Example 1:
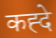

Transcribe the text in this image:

कह्दे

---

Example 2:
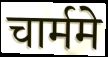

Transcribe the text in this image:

चार्ममे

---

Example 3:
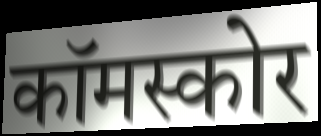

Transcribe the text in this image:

कॉमस्कोर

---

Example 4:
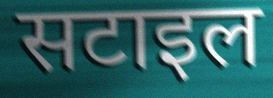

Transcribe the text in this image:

सटाइल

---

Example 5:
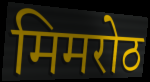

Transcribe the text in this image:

मिमरोठ